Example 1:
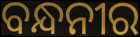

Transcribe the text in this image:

ବନ୍ଧନୀର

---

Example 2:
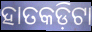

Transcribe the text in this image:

ହାତକଡ଼ିଟା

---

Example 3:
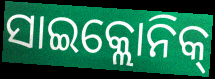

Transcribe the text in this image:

ସାଇକ୍ଲୋନିକ୍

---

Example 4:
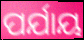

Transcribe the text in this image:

ପର୍ଯାୟ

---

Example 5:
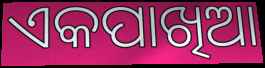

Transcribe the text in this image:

ଏକପାଖିଆ